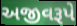
અજીવરૂપે